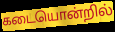
கடையொன்றில்